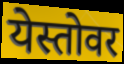
येस्तोवर